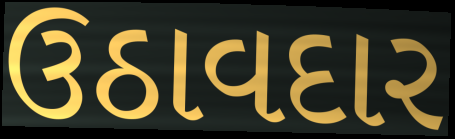
ઉઠાવદાર